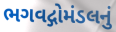
ભગવદ્ગોમંડલનું